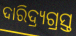
ଦାରିଦ୍ର୍ୟଗ୍ରସ୍ତ